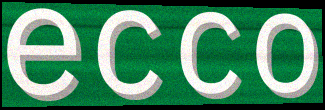
ecco